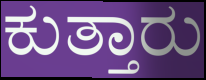
ಕುತ್ತಾರು